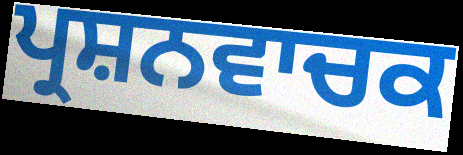
ਪ੍ਰਸ਼ਨਵਾਚਕ